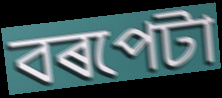
বৰপেটা